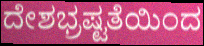
ದೇಶಭ್ರಷ್ಟತೆಯಿಂದ